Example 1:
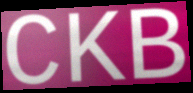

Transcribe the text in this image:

CKB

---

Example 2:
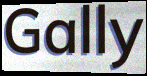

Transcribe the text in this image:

Gally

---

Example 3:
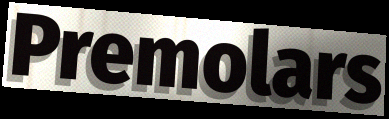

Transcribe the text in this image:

Premolars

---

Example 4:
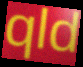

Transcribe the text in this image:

qld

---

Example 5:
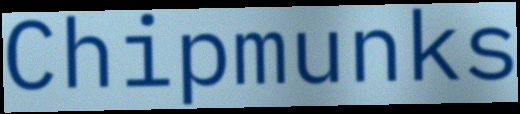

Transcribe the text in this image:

Chipmunks